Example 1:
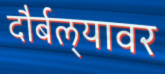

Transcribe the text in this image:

दौर्बल्यावर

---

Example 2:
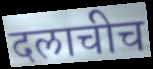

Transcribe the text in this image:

दलाचीच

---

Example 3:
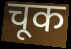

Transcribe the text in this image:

चूक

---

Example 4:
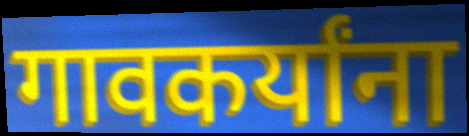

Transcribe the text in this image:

गावकर्यांना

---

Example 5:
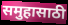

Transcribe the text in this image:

समुहासाठी